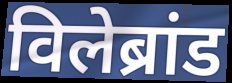
विलेब्रांड